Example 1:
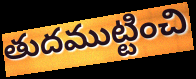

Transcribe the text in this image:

తుదముట్టించి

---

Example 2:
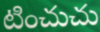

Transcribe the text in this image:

టించుచు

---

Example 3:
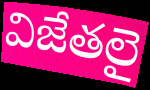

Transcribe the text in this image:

విజేతలై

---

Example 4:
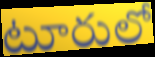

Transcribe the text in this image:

టూరులో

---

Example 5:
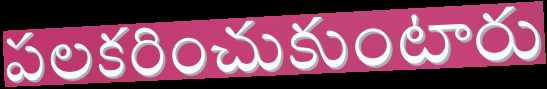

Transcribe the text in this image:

పలకరించుకుంటారు